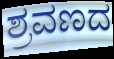
ಶ್ರವಣದ